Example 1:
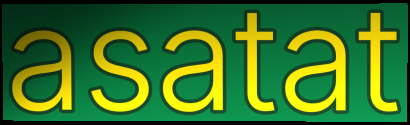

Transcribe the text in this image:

asatat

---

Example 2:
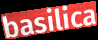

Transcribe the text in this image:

basilica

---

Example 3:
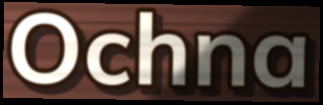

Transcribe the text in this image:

Ochna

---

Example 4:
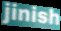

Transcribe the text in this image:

jinish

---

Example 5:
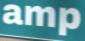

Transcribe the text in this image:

amp